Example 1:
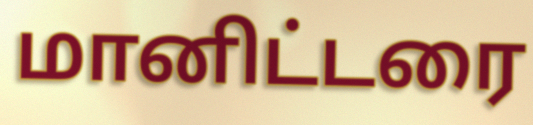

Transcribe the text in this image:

மானிட்டரை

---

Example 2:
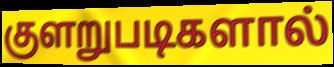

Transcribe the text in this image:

குளறுபடிகளால்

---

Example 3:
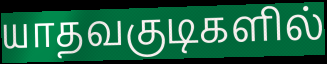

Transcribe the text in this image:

யாதவகுடிகளில்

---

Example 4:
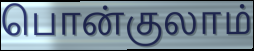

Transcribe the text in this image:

பொன்குலாம்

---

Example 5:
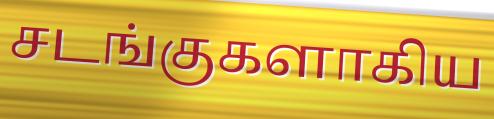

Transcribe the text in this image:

சடங்குகளாகிய